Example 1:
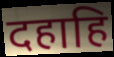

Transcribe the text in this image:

दहाहि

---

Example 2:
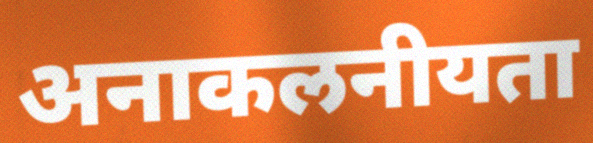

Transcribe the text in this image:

अनाकलनीयता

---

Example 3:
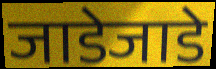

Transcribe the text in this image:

जाडेजाडे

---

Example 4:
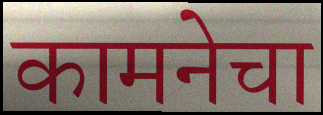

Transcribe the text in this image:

कामनेचा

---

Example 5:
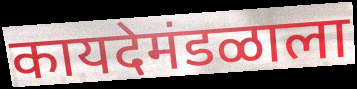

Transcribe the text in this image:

कायदेमंडळाला